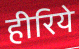
हीरिये